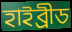
হাইব্ৰীড